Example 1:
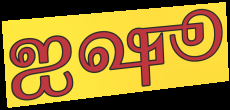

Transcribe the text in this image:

ஐஷூ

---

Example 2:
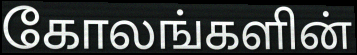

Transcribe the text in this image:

கோலங்களின்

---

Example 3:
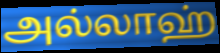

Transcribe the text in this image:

அல்லாஹ்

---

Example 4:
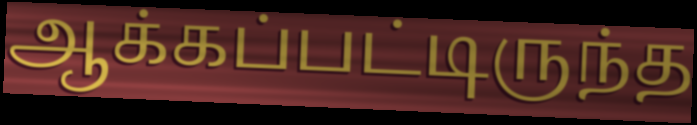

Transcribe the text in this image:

ஆக்கப்பட்டிருந்த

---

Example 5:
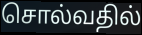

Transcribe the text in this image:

சொல்வதில்